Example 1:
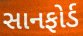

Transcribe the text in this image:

સાનફોર્ડ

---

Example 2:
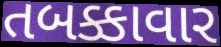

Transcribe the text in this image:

તબક્કાવાર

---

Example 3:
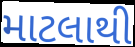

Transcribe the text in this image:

માટલાથી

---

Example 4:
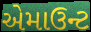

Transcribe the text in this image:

એમાઉન્ટ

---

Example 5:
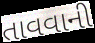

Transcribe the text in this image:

તાવવાની